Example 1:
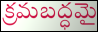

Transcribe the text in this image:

క్రమబద్ధమై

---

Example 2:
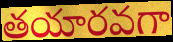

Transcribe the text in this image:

తయారవగా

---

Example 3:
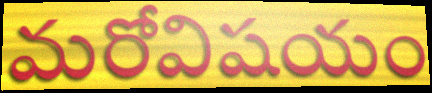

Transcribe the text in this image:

మరోవిషయం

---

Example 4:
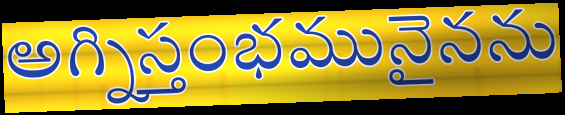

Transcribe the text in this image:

అగ్నిస్తంభమునైనను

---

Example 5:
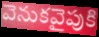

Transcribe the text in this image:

వెనుకవైపుకి